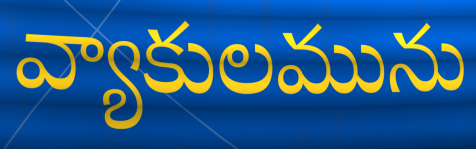
వ్యాకులమును